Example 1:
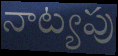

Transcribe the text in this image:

నాట్యపు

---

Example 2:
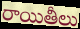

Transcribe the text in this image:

రాయితీలు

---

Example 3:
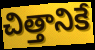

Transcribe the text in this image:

చిత్తానికే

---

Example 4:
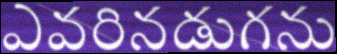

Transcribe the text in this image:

ఎవరినడుగను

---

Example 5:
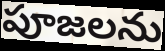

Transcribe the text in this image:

పూజలను